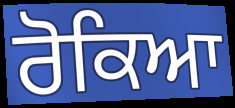
ਰੋਕਿਆ